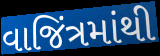
વાજિંત્રમાંથી